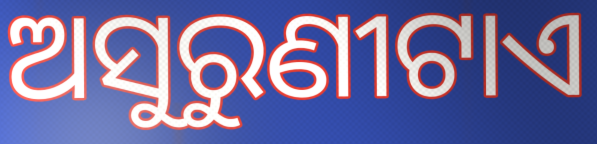
ଅସୁରୁଣୀଟାଏ